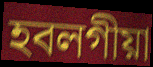
হবলগীয়া